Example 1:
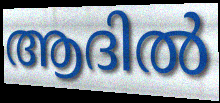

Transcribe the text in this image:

ആദിൽ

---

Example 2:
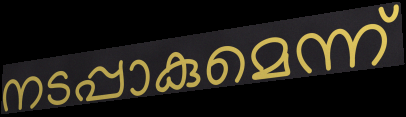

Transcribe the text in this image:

നടപ്പാകുമെന്ന്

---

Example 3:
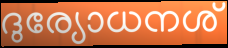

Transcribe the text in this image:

ദുര്യോധനശ്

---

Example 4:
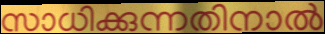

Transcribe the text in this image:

സാധിക്കുന്നതിനാൽ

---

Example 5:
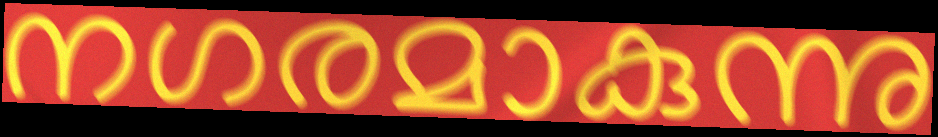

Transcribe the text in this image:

നഗരമാകുന്നു